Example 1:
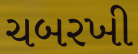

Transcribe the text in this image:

ચબરખી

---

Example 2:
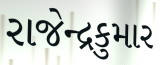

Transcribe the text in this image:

રાજેન્દ્રકુમાર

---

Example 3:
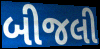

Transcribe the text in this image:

બીજલી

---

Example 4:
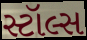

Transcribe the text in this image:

સ્ટૉલ્સ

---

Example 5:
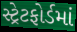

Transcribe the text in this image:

સ્ટ્રેટફોર્ડમાં